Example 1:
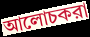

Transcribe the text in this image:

আলোচকরা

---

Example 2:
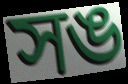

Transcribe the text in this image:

সঙ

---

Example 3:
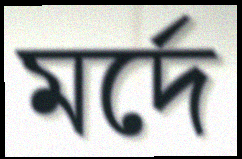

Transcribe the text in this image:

মর্দে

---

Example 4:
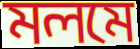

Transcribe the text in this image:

মলমে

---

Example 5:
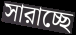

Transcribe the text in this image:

সারাচ্ছে